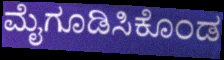
ಮೈಗೂಡಿಸಿಕೊಂಡ